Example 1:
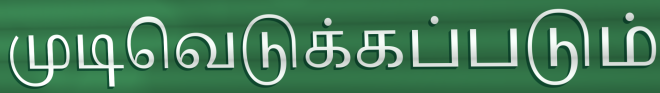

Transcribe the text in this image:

முடிவெடுக்கப்படும்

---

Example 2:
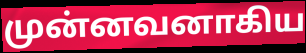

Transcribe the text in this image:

முன்னவனாகிய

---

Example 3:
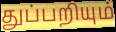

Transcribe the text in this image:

துப்பறியும்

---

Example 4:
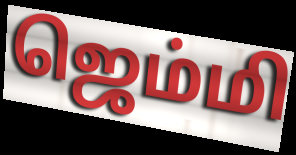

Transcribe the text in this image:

ஜெம்மி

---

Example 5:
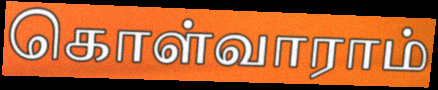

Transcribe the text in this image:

கொள்வாராம்